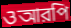
ওআরপি